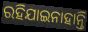
ରହିଯାଇନାହାନ୍ତି